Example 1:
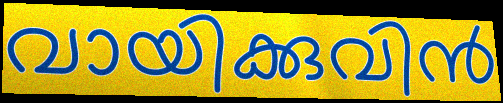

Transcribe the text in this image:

വായിക്കുവിൻ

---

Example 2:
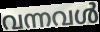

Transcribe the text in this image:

വന്നവൾ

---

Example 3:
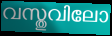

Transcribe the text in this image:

വസ്തുവിലോ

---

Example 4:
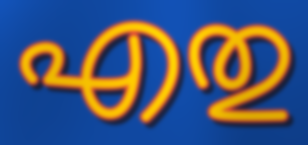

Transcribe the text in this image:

എതു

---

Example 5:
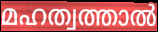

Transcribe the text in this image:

മഹത്വത്താൽ